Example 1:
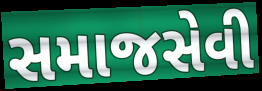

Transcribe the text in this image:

સમાજસેવી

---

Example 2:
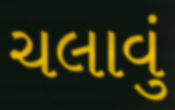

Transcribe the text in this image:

ચલાવું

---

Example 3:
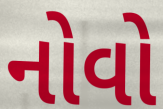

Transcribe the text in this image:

નોવો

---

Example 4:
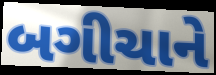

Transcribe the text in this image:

બગીચાને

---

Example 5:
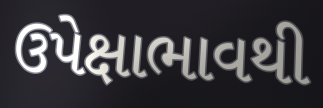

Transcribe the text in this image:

ઉપેક્ષાભાવથી